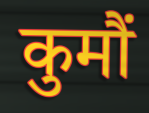
कुमौं